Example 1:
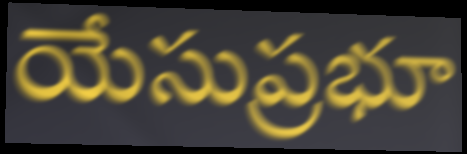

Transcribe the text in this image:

యేసుప్రభూ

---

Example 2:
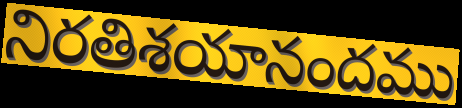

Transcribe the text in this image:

నిరతిశయానందము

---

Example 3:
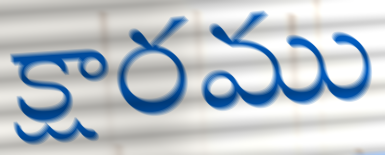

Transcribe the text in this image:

క్షారము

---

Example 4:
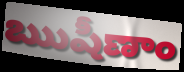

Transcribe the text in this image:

ఋషీణాం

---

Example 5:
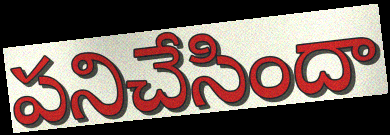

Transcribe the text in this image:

పనిచేసిందా